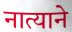
नात्याने